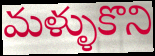
మళ్ళుకొని